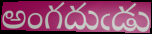
అంగదుఁడు